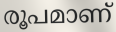
രൂപമാണ്